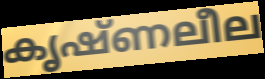
കൃഷ്ണലീല